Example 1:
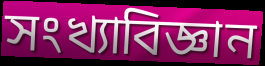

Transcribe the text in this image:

সংখ্যাবিজ্ঞান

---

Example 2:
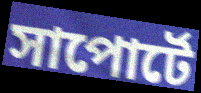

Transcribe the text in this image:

সাপোর্টে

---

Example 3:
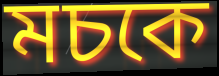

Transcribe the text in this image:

মচকে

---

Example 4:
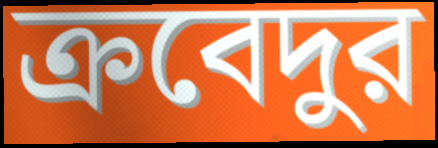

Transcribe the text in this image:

ক্রবেদুর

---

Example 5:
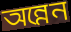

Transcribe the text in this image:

অন্নেন